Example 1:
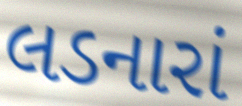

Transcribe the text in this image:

લડનારાં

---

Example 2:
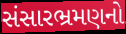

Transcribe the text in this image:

સંસારભ્રમણનો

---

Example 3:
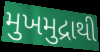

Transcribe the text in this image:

મુખમુદ્રાથી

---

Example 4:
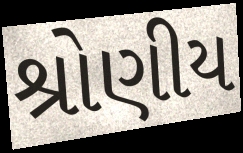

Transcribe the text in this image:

શ્રોણીય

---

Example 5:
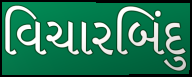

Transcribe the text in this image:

વિચારબિંદુ